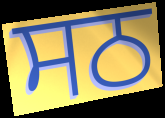
ਸਠ